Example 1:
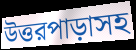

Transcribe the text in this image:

উত্তরপাড়াসহ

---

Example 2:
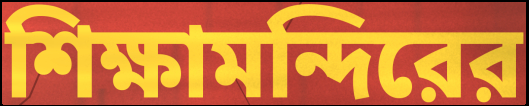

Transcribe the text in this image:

শিক্ষামন্দিরের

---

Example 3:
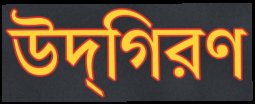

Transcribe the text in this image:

উদ্‌গিরণ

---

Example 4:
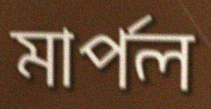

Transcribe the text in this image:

মার্পল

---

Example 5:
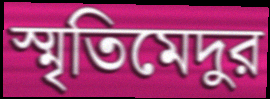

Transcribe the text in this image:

স্মৃতিমেদুর